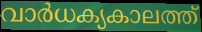
വാർധക്യകാലത്ത്